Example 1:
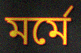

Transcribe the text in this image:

মর্মে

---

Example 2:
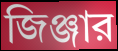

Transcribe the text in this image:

জিঞ্জার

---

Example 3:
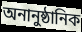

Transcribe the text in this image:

অনানুষ্ঠানিক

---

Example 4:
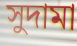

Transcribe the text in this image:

সুদামা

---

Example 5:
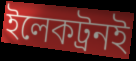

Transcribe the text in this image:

ইলেকট্রনই